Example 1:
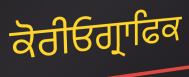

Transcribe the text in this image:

ਕੋਰੀਓਗ੍ਰਾਫਿਕ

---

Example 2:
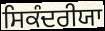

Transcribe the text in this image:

ਸਿਕੰਦਰੀਯਾ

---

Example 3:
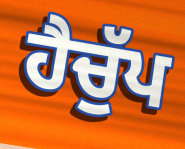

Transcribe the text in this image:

ਹੈਚੁੱਪ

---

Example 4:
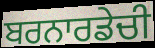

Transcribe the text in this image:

ਬਰਨਾਰਡੇਚੀ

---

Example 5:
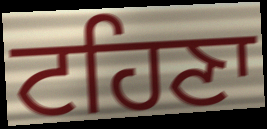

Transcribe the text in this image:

ਟਹਿਣਾ